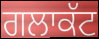
ਗਲਾਕੱਟ